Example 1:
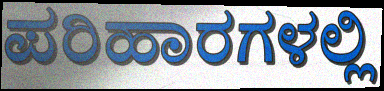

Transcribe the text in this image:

ಪರಿಹಾರಗಳಲ್ಲಿ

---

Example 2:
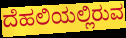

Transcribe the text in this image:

ದೆಹಲಿಯಲ್ಲಿರುವ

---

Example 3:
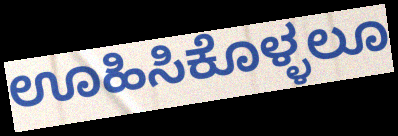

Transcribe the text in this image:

ಊಹಿಸಿಕೊಳ್ಳಲೂ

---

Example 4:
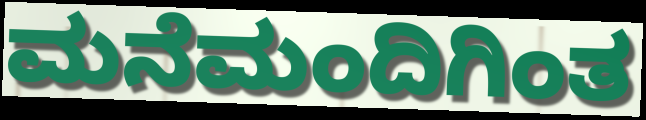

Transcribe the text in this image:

ಮನೆಮಂದಿಗಿಂತ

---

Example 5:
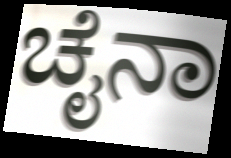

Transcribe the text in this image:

ಚೈನಾ